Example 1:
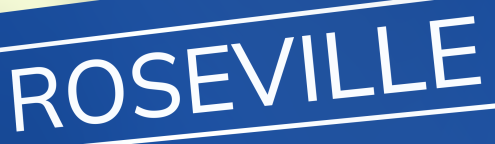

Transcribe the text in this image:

ROSEVILLE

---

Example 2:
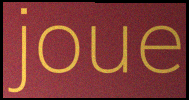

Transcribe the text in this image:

joue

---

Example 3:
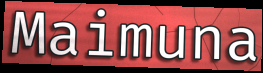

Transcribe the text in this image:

Maimuna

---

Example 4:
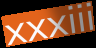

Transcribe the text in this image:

xxxiii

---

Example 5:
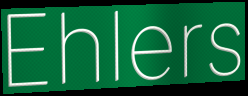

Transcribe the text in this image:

Ehlers